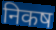
निकष